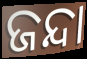
ଜନ୍ଦା